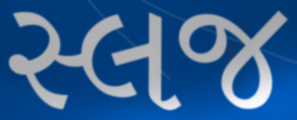
સ્લજ